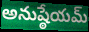
అనుష్ఠేయమ్